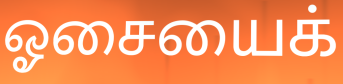
ஓசையைக்